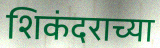
शिकंदराच्या